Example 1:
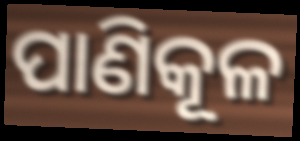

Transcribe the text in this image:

ପାଣିକୂଳ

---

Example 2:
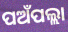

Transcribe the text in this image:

ପଅଁପଲ୍ଲା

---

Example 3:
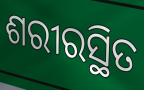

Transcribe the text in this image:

ଶରୀରସ୍ଥିତ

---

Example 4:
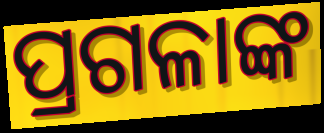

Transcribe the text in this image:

ପ୍ରଗଳାଙ୍କ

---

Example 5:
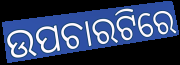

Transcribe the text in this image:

ଉପଚାରଟିରେ